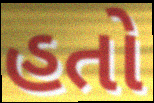
હતો